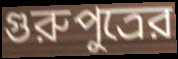
গুরুপুত্রের